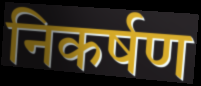
निकर्षण